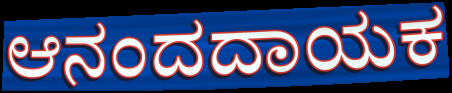
ಆನಂದದಾಯಕ